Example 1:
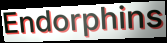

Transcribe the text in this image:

Endorphins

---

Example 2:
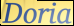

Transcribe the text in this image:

Doria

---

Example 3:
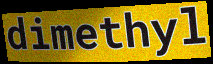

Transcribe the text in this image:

dimethyl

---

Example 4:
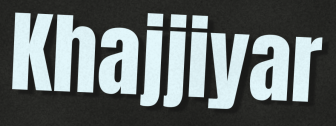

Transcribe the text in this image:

Khajjiyar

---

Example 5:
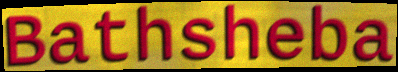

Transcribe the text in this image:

Bathsheba